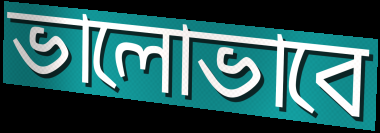
ভালোভাবে